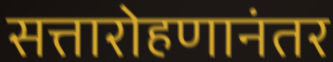
सत्तारोहणानंतर